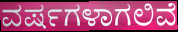
ವರ್ಷಗಳಾಗಲಿವೆ